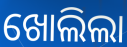
ଖୋଲିଲା